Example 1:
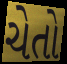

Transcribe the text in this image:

ચેતો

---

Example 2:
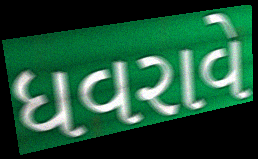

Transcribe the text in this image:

ધવરાવે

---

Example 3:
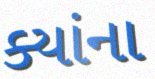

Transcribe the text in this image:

ક્યાંના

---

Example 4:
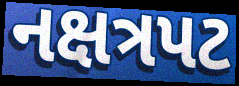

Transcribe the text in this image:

નક્ષત્રપટ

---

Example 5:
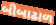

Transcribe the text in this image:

બીબાઢાળ